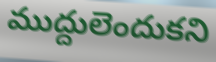
ముద్దులెందుకని